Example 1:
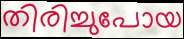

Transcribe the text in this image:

തിരിച്ചുപോയ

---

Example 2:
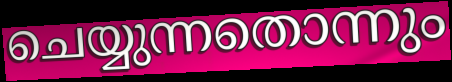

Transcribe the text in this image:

ചെയ്യുന്നതൊന്നും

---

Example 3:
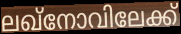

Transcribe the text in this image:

ലഖ്നോവിലേക്ക്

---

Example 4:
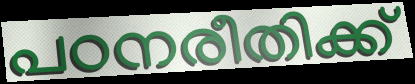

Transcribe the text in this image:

പഠനരീതിക്ക്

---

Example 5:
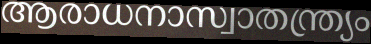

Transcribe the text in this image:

ആരാധനാസ്വാതന്ത്ര്യം